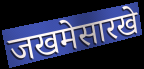
जखमेसारखे